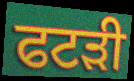
ਫਟੜੀ